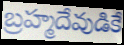
బ్రహ్మదేవుడికే